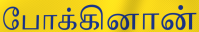
போக்கினான்